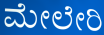
ಮೇಲೇರಿ